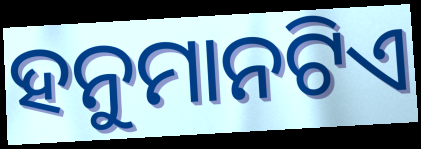
ହନୁମାନଟିଏ